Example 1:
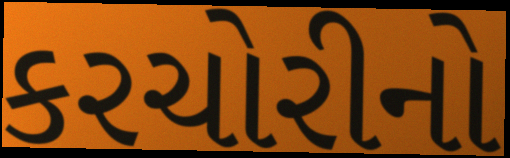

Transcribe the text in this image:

કરચોરીનો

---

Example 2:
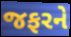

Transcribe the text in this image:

જફરને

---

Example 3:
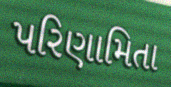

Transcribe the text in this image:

પરિણામિતા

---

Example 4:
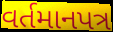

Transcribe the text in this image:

વર્તમાનપત્ર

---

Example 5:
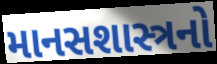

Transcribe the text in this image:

માનસશાસ્ત્રનો